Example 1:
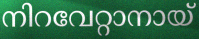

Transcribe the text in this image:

നിറവേറ്റാനായ്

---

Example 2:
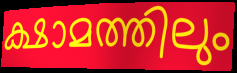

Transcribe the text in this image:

ക്ഷാമത്തിലും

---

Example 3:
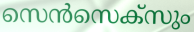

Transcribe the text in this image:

സെൻസെക്സും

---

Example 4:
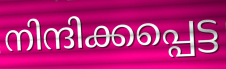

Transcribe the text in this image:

നിന്ദിക്കപ്പെട്ട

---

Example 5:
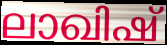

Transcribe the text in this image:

ലാഖിഷ്